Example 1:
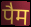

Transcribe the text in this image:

पैम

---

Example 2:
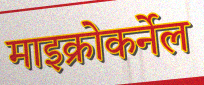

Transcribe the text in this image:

माइक्रोकर्नेल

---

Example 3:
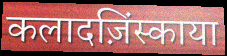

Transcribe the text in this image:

कलादज़िंस्काया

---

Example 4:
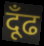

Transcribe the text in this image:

दूँढ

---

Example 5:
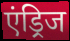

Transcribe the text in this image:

एंड्रिज